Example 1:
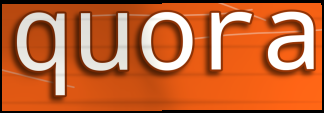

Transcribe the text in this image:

quora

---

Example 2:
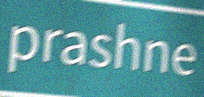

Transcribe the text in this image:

prashne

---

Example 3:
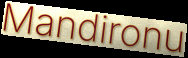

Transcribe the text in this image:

Mandironu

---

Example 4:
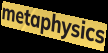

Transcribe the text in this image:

metaphysics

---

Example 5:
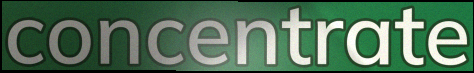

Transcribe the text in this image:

concentrate